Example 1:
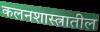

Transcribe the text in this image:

कलनशास्त्रातील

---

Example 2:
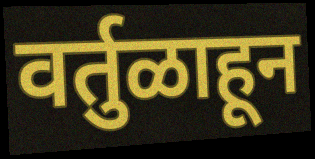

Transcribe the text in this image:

वर्तुळाहून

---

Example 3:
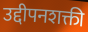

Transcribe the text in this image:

उद्दीपनशक्ती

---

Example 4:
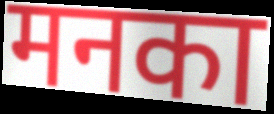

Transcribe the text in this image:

मनका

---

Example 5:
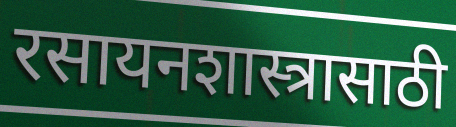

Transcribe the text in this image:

रसायनशास्त्रासाठी